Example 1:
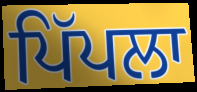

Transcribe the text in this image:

ਪਿੱਪਲਾ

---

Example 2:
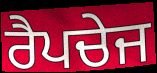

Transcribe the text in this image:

ਰੈਪਚੇਜ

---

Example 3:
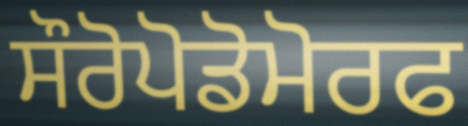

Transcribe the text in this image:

ਸੌਰੋਪੋਡੋਮੋਰਫ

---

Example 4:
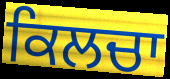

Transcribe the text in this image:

ਕਿਲਚਾ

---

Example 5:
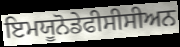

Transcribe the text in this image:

ਇਮਯੂਨੋਡੇਫੀਸੀਸੀਅਨ